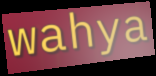
wahya